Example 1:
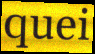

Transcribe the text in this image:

quei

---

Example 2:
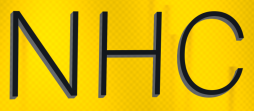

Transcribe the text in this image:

NHC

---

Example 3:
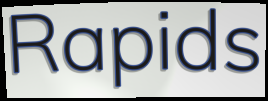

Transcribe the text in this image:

Rapids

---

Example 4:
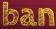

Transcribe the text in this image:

ban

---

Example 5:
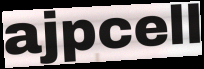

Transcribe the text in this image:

ajpcell